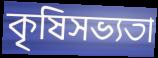
কৃষিসভ্যতা